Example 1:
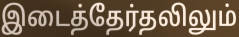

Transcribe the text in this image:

இடைத்தேர்தலிலும்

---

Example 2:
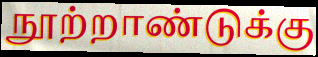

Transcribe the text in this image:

நூற்றாண்டுக்கு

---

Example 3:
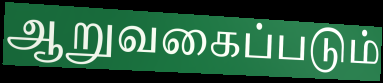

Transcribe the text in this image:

ஆறுவகைப்படும்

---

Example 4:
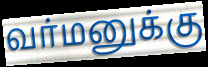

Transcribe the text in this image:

வர்மனுக்கு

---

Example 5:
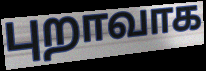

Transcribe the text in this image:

புறாவாக